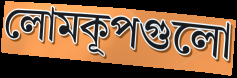
লোমকূপগুলো